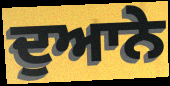
ਦੁਆਨੇ